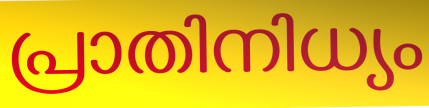
പ്രാതിനിധ്യം